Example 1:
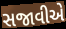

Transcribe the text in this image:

સજાવીએ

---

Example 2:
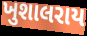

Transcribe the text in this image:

ખુશાલરાય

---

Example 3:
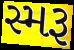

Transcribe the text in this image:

સ્મરૂ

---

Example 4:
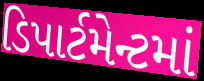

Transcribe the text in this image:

ડિપાર્ટમેન્ટમાં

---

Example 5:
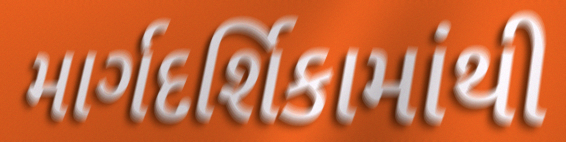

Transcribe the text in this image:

માર્ગદર્શિકામાંથી